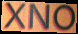
XNO